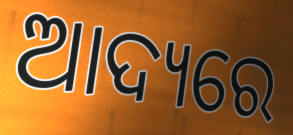
ଆଦ୍ୟରେ